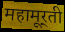
महामूर्ती